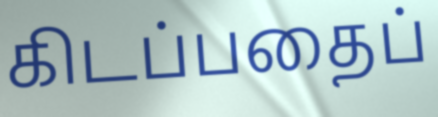
கிடப்பதைப்